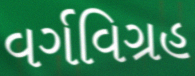
વર્ગવિગ્રહ